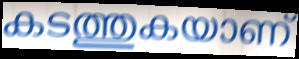
കടത്തുകയാണ്